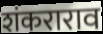
शंकराराव